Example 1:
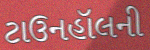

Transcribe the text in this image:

ટાઉનહૉલની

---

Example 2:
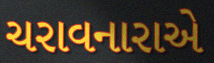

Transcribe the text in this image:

ચરાવનારાએ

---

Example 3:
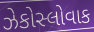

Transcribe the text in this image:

ઝેકોસ્લોવાક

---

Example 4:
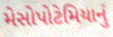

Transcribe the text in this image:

મેસોપોટેમિયાનું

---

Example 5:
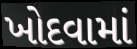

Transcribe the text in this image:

ખોદવામાં